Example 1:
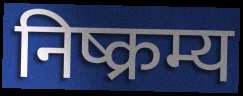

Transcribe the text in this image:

निष्क्रम्य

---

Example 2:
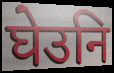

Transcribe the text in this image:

घेउनि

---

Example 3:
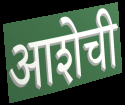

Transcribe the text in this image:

आशेची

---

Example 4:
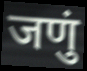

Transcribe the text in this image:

जणुं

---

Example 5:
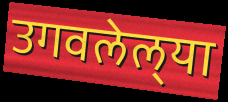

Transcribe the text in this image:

उगवलेल्या